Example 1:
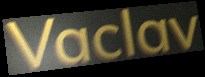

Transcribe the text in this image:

Vaclav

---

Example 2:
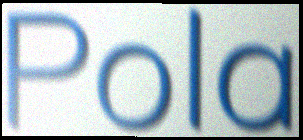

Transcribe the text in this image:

Pola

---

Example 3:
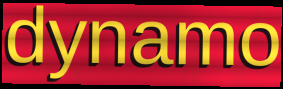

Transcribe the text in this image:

dynamo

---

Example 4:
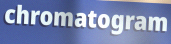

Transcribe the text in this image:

chromatogram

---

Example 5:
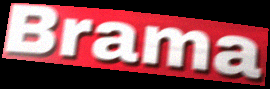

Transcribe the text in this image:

Brama